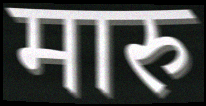
मारु